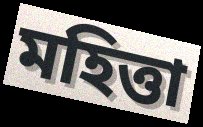
মহিত্তা